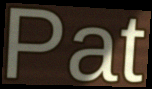
Pat